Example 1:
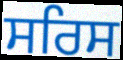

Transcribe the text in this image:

ਸਰਿਸ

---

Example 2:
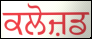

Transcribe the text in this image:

ਕਲੋਜ਼ਡ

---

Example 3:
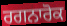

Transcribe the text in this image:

ਰਗਨਾਰੋਕ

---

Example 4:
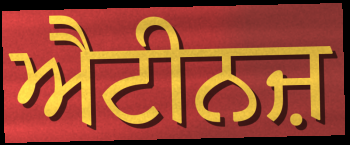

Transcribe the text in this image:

ਐਟੀਨਜ਼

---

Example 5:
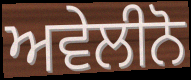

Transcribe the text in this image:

ਅਵੇਲੀਨੋ